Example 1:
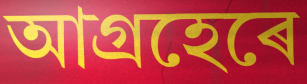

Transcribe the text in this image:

আগ্ৰহেৰে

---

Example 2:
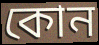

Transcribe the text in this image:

কোন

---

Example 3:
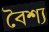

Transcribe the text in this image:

বৈশ্য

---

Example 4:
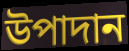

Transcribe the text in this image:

উপাদান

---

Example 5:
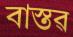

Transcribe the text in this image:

বাস্তৱ